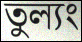
তুল্যং